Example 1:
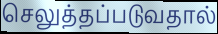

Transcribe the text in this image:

செலுத்தப்படுவதால்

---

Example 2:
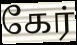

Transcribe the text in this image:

கேர்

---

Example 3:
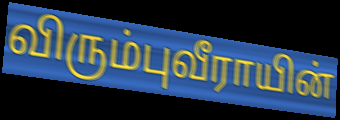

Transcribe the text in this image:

விரும்புவீராயின்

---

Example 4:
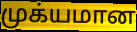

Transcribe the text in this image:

முக்யமான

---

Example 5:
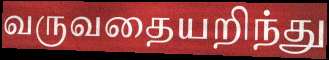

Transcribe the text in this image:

வருவதையறிந்து